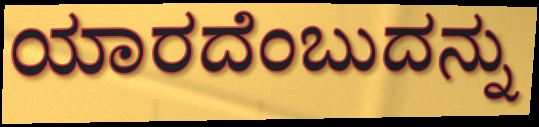
ಯಾರದೆಂಬುದನ್ನು